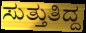
ಸುತ್ತುತಿದ್ದ